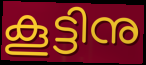
കൂട്ടിനു